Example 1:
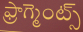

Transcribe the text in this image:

ఫ్రాగ్మెంట్స్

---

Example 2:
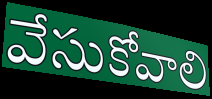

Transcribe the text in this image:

వేసుకోవాలి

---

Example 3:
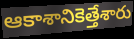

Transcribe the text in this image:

ఆకాశానికెత్తేశారు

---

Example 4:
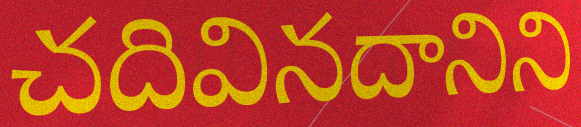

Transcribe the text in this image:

చదివినదానిని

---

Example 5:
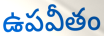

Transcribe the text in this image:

ఉపవీతం